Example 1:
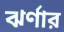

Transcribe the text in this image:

ঝর্ণার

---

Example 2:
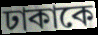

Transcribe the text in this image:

ঢাকাকে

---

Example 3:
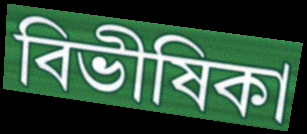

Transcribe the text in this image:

বিভীষিকা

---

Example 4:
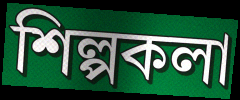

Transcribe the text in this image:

শিল্পকলা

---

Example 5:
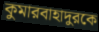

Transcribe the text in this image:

কুমারবাহাদুরকে